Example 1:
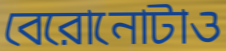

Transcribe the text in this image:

বেরোনোটাও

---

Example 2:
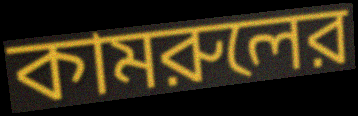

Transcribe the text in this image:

কামরুলের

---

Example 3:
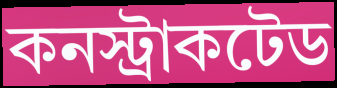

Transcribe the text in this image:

কনস্ট্রাকটেড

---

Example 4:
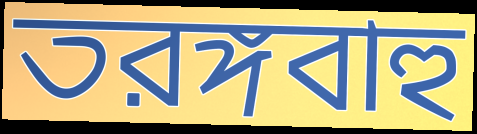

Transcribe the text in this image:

তরঙ্গবাহু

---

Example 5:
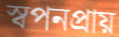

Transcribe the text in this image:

স্বপনপ্রায়